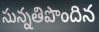
సున్నతిపొందిన